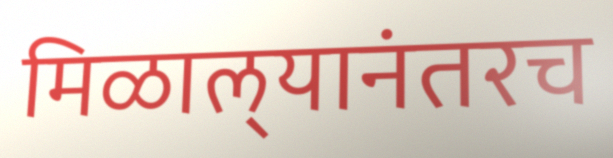
मिळाल्यानंतरच